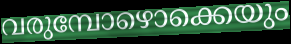
വരുമ്പോഴൊക്കെയും